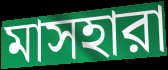
মাসহারা